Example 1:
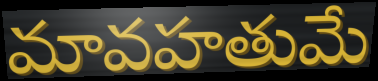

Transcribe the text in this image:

మావహతుమే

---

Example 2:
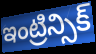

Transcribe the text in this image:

ఇంట్రిన్సిక్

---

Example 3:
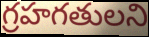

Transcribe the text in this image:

గ్రహగతులని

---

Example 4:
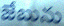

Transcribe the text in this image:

జేబును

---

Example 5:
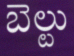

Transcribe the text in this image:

బెల్టు